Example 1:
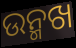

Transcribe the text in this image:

ଉନ୍ମଖ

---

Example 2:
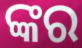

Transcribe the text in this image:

ଙ୍କର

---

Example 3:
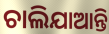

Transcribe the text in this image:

ଚାଲିଯାଆନ୍ତି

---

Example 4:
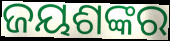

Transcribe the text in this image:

ଜୟଶଙ୍କର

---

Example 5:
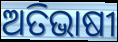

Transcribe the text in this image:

ଅତିଭାଷୀ